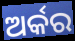
ଅର୍କର